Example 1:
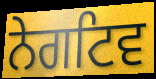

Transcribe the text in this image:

ਨੇਗਟਿਵ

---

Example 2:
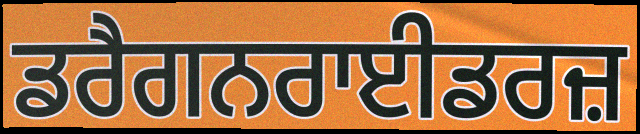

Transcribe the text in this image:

ਡਰੈਗਨਰਾਈਡਰਜ਼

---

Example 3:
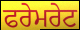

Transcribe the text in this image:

ਫਰੇਮਰੇਟ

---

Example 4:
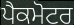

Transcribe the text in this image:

ਪੈਕਮੋਟਰ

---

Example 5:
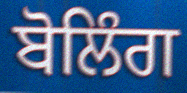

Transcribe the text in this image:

ਬੋਲਿੰਗ